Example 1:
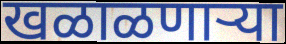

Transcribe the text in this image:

खळाळणाऱ्या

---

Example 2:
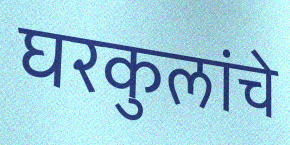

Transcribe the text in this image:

घरकुलांचे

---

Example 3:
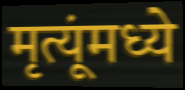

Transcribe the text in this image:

मृत्यूंमध्ये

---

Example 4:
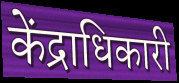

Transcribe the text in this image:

केंद्राधिकारी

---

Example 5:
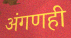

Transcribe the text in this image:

अंगणही